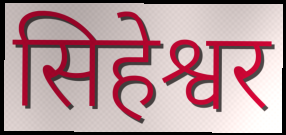
सिहेश्वर